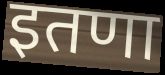
इतणा